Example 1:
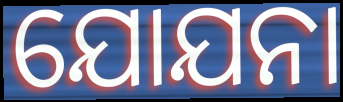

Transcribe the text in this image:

ଯୋଯନା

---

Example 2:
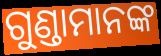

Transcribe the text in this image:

ଗୁଣ୍ଡାମାନଙ୍କ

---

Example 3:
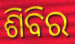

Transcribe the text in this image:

ଶିବିର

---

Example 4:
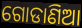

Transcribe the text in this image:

ଗୋଡାଣିଆ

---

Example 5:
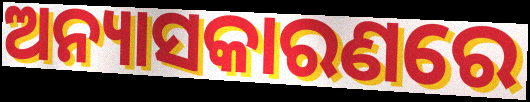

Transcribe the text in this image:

ଅନ୍ୟାସକାରଣରେ